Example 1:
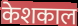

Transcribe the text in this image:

केशकाल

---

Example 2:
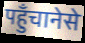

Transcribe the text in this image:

पहुँचानेसे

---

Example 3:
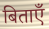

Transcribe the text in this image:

बिताएँ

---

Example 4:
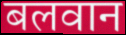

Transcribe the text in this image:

बलवान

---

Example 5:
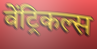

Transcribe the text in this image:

वेंट्रिकल्स